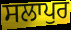
ਸਲਾਪੁਰ